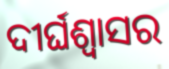
ଦୀର୍ଘଶ୍ବାସର